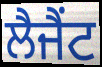
ਲੈਜੈਂਟ